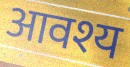
आवश्य